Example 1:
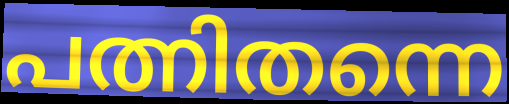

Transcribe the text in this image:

പത്നിതന്നെ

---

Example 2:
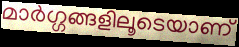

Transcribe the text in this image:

മാർഗ്ഗങ്ങളിലൂടെയാണ്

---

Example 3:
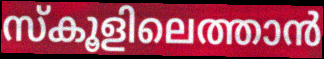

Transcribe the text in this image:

സ്കൂളിലെത്താൻ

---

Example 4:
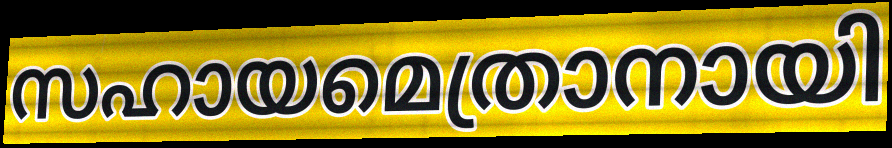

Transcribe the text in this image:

സഹായമെത്രാനായി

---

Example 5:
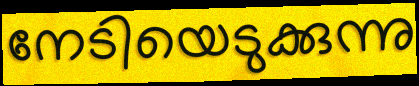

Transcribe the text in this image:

നേടിയെടുക്കുന്നു